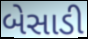
બેસાડી